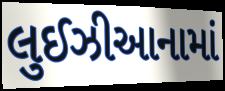
લુઈઝીઆનામાં